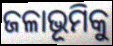
ଜଳାଭୂମିକୁ